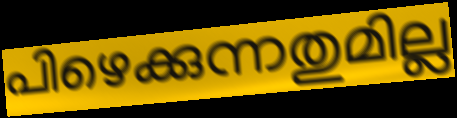
പിഴെക്കുന്നതുമില്ല